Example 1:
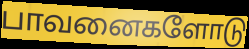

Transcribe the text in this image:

பாவனைகளோடு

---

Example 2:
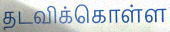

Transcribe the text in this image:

தடவிக்கொள்ள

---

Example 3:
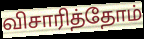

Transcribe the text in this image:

விசாரித்தோம்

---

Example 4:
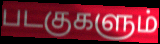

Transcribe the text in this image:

படகுகளும்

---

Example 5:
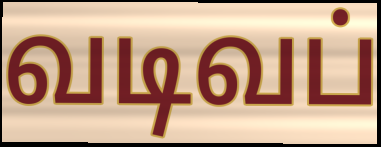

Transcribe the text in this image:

வடிவப்